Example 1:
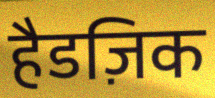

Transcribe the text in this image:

हैडज़िक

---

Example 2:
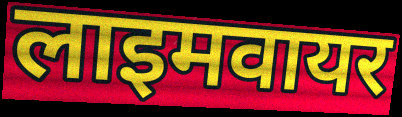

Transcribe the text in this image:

लाइमवायर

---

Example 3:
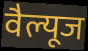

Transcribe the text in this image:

वैल्यूज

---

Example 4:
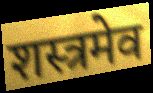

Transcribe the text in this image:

शस्त्रमेव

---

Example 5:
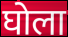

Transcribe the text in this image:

घोला